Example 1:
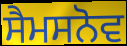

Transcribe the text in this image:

ਸੈਮਸਨੋਵ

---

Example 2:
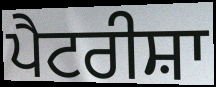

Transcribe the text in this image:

ਪੈਟਰੀਸ਼ਾ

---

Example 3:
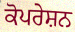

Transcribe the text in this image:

ਕੋਪਰੇਸ਼ਨ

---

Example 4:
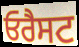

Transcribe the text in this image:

ਓਰੈਸਟ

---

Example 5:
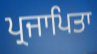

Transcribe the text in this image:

ਪ੍ਰਜਾਪਿਤਾ